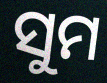
ସୁମ